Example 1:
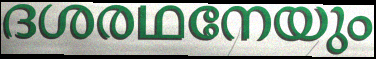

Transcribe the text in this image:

ദശരഥനേയും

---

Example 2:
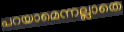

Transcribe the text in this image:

പറയാമെന്നല്ലാതെ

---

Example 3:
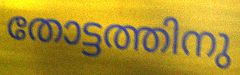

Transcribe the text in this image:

തോട്ടത്തിനു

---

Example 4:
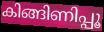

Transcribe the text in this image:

കിങ്ങിണിപ്പൂ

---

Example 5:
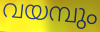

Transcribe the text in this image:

വയമ്പും